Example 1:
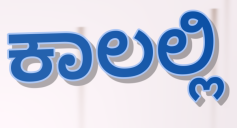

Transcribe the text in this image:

ಕಾಲಲ್ಲಿ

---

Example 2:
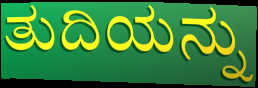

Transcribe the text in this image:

ತುದಿಯನ್ನು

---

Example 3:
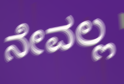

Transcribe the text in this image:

ನೇವಲ್ಲ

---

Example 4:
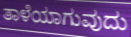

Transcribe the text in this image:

ತಾಳೆಯಾಗುವುದು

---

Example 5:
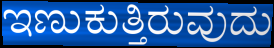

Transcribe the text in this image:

ಇಣುಕುತ್ತಿರುವುದು